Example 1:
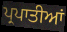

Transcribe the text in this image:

ਪ੍ਰਪਾਤੀਆਂ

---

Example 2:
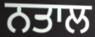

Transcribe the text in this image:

ਨਤਾਲ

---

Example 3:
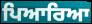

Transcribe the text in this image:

ਪਿਆਰਿਆ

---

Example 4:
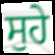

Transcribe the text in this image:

ਸੁਹੇ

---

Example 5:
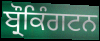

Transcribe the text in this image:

ਬ੍ਰੌਕਿੰਗਟਨ